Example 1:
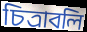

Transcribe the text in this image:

চিত্রাবলি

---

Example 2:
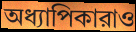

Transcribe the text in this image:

অধ্যাপিকারাও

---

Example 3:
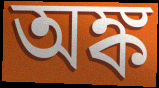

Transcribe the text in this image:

অঙ্ক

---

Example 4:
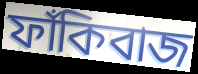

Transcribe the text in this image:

ফাঁকিবাজ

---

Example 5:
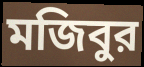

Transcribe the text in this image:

মজিবুর